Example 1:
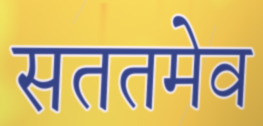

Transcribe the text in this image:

सततमेव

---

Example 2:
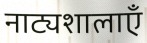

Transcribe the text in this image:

नाट्यशालाएँ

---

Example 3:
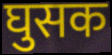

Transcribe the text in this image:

घुसक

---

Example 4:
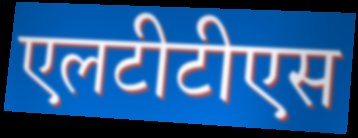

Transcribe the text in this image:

एलटीटीएस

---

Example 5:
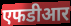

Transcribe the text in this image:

एफडीआर